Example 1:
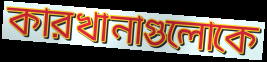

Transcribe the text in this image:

কারখানাগুলোকে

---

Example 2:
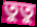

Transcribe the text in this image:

তুতু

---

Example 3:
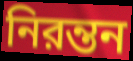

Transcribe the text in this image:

নিরন্তন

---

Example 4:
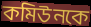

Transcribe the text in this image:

কমিউনকে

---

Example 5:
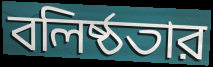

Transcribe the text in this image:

বলিষ্ঠতার